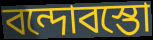
বন্দোবস্তো